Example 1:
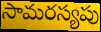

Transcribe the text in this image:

సామరస్యపు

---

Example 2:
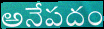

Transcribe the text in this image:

అనేపదం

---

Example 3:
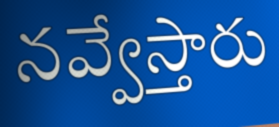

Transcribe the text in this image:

నవ్వేస్తారు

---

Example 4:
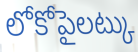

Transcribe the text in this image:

లోకోపైలట్కు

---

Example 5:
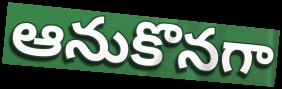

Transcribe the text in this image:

ఆనుకొనగా